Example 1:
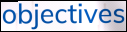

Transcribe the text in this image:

objectives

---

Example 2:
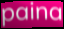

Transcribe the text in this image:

paina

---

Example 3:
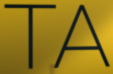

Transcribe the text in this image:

TA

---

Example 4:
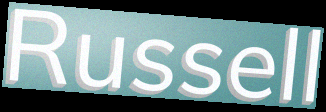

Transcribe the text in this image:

Russell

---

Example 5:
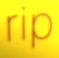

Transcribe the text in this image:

rip